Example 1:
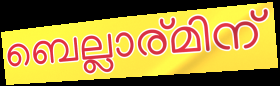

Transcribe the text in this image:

ബെല്ലാര്മിന്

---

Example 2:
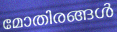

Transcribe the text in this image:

മോതിരങ്ങൾ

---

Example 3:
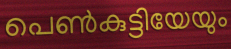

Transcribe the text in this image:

പെൺകുട്ടിയേയും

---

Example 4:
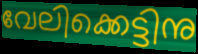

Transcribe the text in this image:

വേലിക്കെട്ടിനു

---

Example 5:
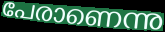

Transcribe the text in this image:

പേരാണെന്നു